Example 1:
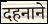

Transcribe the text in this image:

दहनाने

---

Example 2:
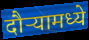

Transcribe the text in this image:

दौऱ्यामध्ये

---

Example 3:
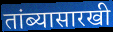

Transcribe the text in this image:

तांब्यासारखी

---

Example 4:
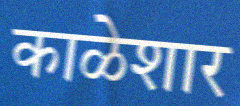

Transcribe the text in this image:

काळेशार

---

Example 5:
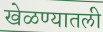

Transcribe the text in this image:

खेळण्यातली